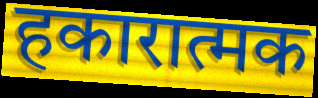
हकारात्मक